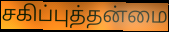
சகிப்புத்தன்மை